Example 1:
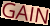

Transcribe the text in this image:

GAIN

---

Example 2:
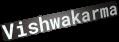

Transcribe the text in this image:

Vishwakarma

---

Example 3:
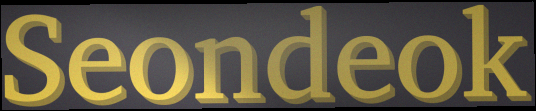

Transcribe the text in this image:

Seondeok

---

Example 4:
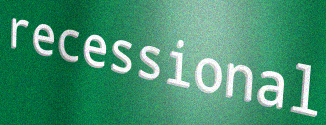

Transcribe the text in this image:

recessional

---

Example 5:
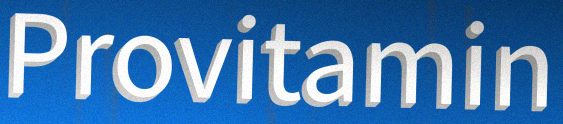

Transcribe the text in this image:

Provitamin